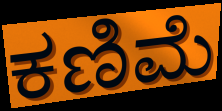
ಕಣಿಮೆ